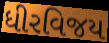
ધીરવિજય